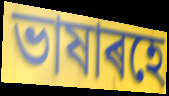
ভাষাৰহে